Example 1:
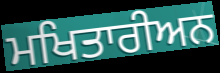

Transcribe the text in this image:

ਮਖਿਤਾਰੀਅਨ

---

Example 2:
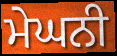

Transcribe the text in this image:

ਮੇਘਨੀ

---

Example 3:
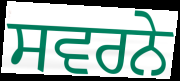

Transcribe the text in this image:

ਸਵਰਨੇ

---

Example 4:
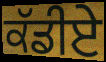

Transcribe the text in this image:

ਕੱਡੀਏ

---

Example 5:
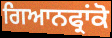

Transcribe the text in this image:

ਗਿਆਨਫ੍ਰਾਂਕੋ